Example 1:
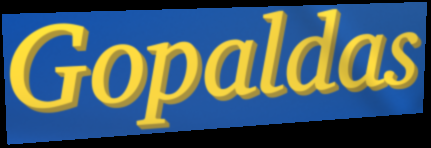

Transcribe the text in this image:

Gopaldas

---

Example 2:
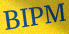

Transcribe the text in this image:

BIPM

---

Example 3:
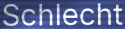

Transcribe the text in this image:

Schlecht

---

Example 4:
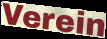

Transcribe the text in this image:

Verein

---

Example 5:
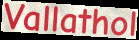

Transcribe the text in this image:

Vallathol